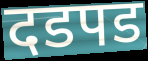
दडपड